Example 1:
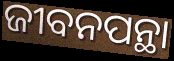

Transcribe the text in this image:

ଜୀବନପନ୍ଥା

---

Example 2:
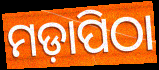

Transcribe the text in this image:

ମଡ଼ାପିଠା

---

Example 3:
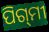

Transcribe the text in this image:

ପିଗ୍‌ମୀ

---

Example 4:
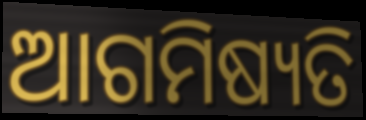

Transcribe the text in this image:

ଆଗମିଷ୍ୟତି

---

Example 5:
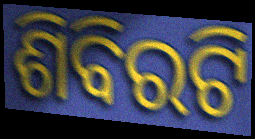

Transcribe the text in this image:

ଶିବିରଟି